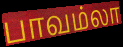
பாவம்லா